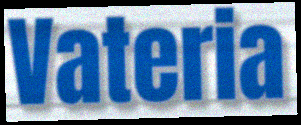
Vateria